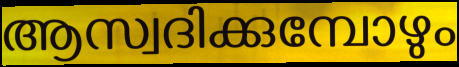
ആസ്വദിക്കുമ്പോഴും